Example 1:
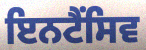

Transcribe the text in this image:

ਇਨਟੈਂਸਿਵ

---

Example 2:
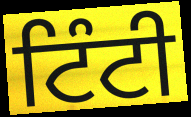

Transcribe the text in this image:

ਟਿੰਟੀ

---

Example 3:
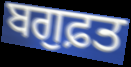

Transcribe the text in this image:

ਬਗੁਫ਼ਤ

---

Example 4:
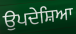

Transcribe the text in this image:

ਉਪਦੇਸ਼ਿਆ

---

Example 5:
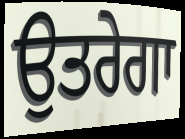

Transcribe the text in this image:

ਉਤਰੇਗਾ